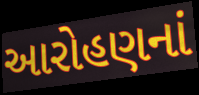
આરોહણનાં